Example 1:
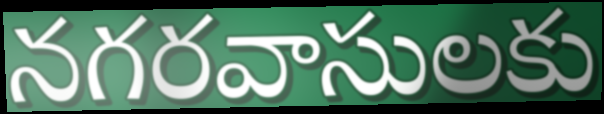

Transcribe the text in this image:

నగరవాసులకు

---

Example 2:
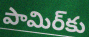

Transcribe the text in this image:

పామిర్‌కు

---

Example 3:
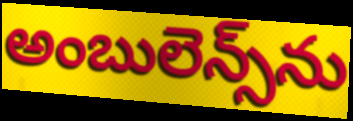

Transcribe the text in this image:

అంబులెన్స్‌ను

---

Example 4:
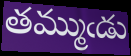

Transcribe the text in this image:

తమ్ముఁడు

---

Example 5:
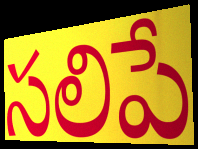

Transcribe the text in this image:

సలిపే